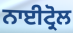
ਨਾਈਟ੍ਰੋਲ